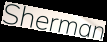
Sherman